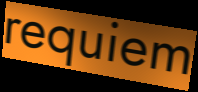
requiem